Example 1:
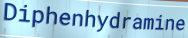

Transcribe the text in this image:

Diphenhydramine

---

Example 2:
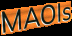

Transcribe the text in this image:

MAOIs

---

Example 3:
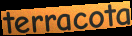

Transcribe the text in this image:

terracota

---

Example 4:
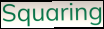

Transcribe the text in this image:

Squaring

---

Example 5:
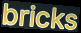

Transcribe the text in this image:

bricks